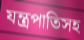
যন্ত্রপাতিসহ